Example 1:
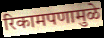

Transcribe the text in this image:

रिकामपणामुळे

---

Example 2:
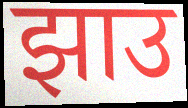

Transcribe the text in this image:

झाउ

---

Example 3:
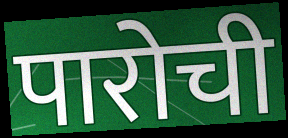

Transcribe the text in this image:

पारोची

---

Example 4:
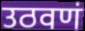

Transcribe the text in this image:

उठवणं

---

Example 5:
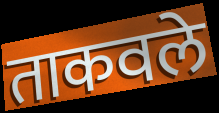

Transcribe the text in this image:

ताकवले